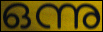
ഒന്നു